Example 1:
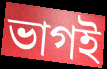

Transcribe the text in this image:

ভাগই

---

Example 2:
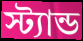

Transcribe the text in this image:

স্ট্যান্ড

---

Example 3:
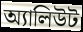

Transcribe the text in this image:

অ্যালিউট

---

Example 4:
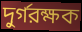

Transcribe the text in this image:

দুর্গরক্ষক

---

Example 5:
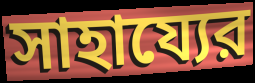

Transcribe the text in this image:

সাহায্যের